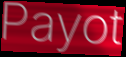
Payot